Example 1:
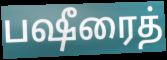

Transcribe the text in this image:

பஷீரைத்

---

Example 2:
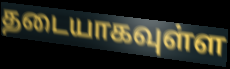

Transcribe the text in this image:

தடையாகவுள்ள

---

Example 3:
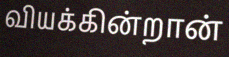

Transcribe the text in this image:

வியக்கின்றான்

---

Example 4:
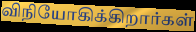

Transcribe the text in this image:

விநியோகிக்கிறார்கள்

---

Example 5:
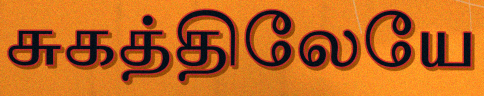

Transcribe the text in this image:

சுகத்திலேயே